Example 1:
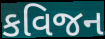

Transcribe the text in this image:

કવિજન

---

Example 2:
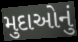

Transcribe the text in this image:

મુદાઓનું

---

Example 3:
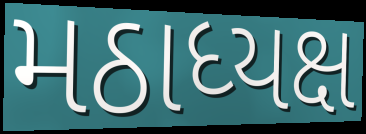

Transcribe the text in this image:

મઠાધ્યક્ષ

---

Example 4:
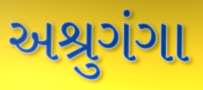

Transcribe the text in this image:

અશ્રુગંગા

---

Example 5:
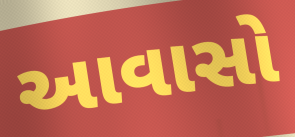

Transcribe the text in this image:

આવાસો